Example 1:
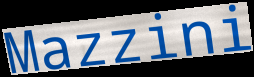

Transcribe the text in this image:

Mazzini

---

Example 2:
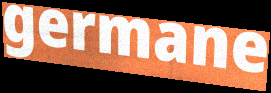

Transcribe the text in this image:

germane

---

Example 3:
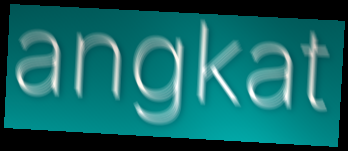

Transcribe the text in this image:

angkat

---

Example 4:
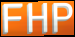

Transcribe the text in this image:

FHP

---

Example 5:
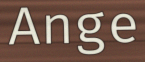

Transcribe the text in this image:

Ange